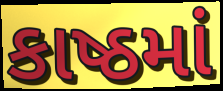
કાષ્ઠમાં